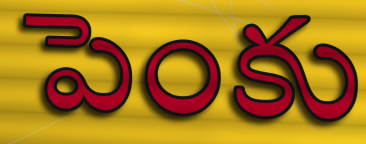
పెంకు